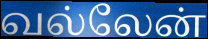
வல்லேன்